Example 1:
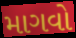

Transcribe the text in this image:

માગવો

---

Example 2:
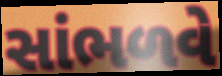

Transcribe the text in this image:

સાંભળવે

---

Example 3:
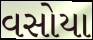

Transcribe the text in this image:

વસોયા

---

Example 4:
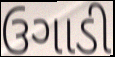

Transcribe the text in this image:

ઉગાડી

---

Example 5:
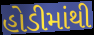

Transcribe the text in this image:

હોડીમાંથી